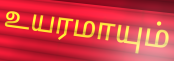
உயரமாயும்